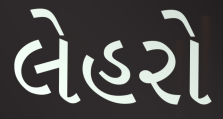
લેહરો